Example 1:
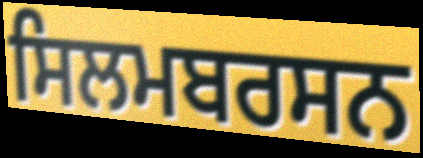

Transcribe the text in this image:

ਸਿਲਮਬਰਸਨ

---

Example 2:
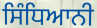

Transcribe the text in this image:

ਸਿੰਧਿਆਨੀ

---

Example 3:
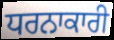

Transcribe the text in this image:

ਧਰਨਾਕਾਰੀ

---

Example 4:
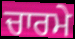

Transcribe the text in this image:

ਚਾਰਮੇ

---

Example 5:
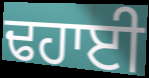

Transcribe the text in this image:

ਢਹਾਈ